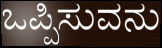
ಒಪ್ಪಿಸುವನು